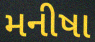
મનીષા